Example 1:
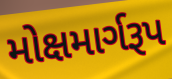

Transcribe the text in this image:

મોક્ષમાર્ગરૂપ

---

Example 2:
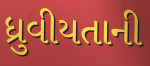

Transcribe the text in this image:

ધ્રુવીયતાની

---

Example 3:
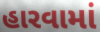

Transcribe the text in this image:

હારવામાં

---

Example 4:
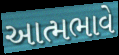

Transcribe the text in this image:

આત્મભાવે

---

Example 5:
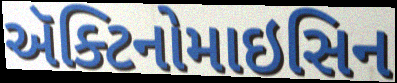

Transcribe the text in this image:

ઍક્ટિનોમાઇસિન